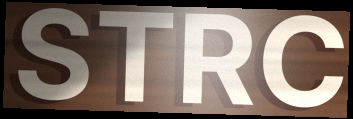
STRC